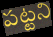
పట్టని